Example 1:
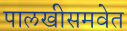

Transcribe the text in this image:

पालखीसमवेत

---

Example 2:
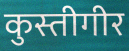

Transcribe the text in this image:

कुस्तीगीर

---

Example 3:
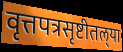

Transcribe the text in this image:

वृत्तपत्रसृष्टीतल्या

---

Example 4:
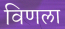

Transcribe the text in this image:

विणला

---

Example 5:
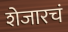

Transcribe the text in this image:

शेजारचं